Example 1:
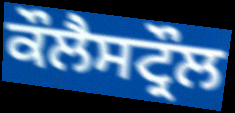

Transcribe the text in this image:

ਕੌਲੈਸਟ੍ਰੌਲ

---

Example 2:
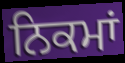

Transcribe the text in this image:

ਨਿਕਮਾਂ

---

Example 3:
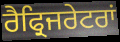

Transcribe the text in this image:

ਰੈਫ੍ਰਿਜਰੇਟਰਾਂ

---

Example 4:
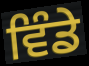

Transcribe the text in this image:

ਵਿੰਡੇ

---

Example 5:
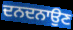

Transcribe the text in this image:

ਦਨਦਨਾਉਣ